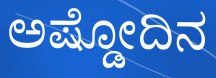
ಅಷ್ಡೋದಿನ